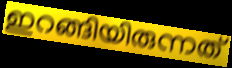
ഇറങ്ങിയിരുന്നത്